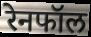
रेनफॉल